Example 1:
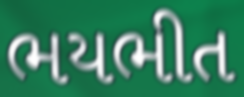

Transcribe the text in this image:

ભયભીત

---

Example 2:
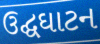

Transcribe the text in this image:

ઉદ્ઘઘાટન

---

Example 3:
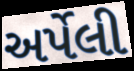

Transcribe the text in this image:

અર્પેલી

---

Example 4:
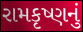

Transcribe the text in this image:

રામકૃષ્ણનું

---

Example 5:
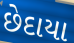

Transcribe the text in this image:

છેદાયા